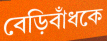
বেড়িবাঁধকে